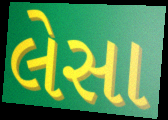
લેસા